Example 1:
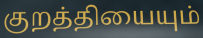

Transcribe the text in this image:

குறத்தியையும்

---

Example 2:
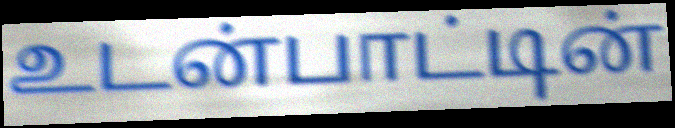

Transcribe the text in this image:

உடன்பாட்டின்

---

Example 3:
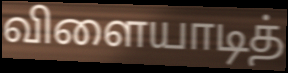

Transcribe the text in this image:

விளையாடித்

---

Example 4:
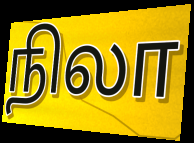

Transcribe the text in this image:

நிலா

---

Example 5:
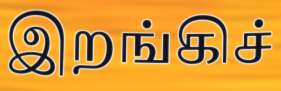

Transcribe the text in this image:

இறங்கிச்